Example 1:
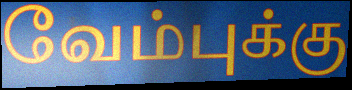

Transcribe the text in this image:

வேம்புக்கு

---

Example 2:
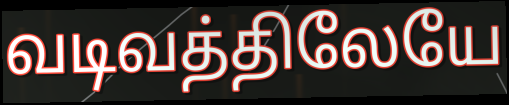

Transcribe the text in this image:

வடிவத்திலேயே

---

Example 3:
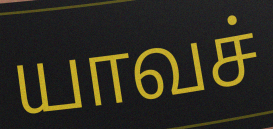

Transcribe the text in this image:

யாவச்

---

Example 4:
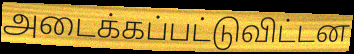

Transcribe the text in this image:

அடைக்கப்பட்டுவிட்டன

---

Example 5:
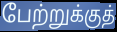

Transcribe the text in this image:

பேற்றுக்குத்